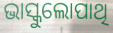
ଭାସ୍କୁଲୋପାଥି